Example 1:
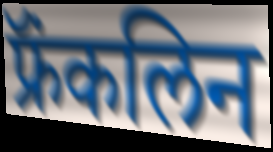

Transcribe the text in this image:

फ्रॅंकलिन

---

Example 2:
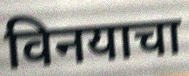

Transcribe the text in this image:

विनयाचा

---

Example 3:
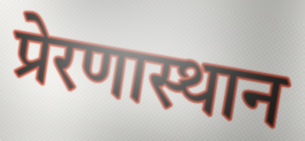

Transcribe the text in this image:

प्रेरणास्थान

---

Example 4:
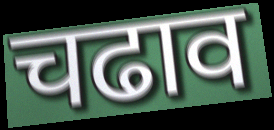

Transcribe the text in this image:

चढाव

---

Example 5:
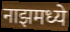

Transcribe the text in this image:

नाझमध्ये